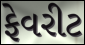
ફેવરીટ